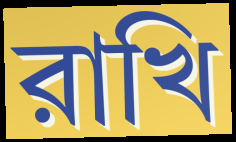
রাখি